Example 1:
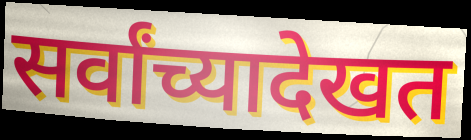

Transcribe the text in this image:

सर्वांच्यादेखत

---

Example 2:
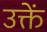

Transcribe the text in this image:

उक्तें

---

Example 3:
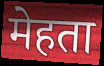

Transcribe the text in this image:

मेहता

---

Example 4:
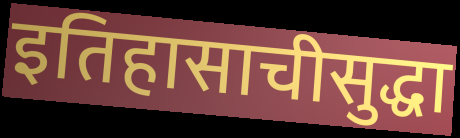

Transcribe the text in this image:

इतिहासाचीसुद्धा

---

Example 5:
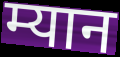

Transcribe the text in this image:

म्यान